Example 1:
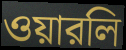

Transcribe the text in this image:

ওয়ারলি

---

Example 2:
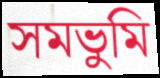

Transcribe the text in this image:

সমভুমি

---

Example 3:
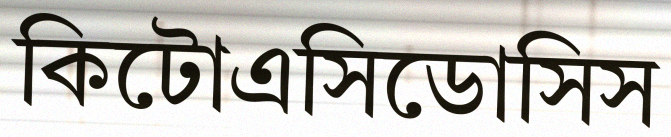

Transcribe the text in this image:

কিটোএসিডোসিস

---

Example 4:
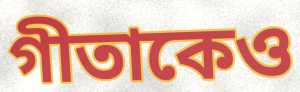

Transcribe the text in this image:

গীতাকেও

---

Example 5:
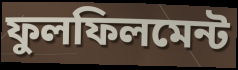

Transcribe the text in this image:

ফুলফিলমেন্ট